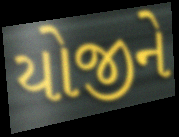
યોજીને